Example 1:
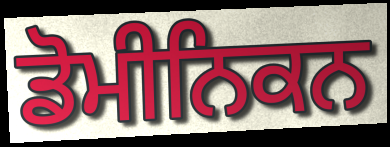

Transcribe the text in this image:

ਡੋਮੀਨਿਕਨ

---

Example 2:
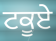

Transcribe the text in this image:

ਟਕੂਏ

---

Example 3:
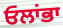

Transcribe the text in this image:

ਓਲਾਂਭਾ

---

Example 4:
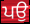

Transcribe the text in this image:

ਪਉ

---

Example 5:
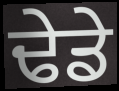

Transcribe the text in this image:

ਢੇਡੇ